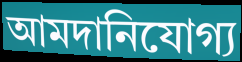
আমদানিযোগ্য